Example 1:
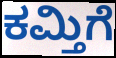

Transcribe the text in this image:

ಕಮ್ತಿಗೆ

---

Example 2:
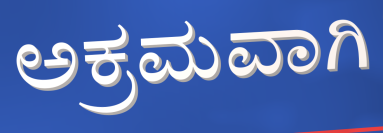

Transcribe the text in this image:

ಅಕ್ರಮವಾಗಿ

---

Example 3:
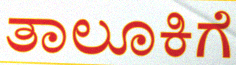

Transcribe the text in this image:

ತಾಲೂಕಿಗೆ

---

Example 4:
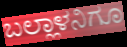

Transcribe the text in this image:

ಬಲ್ಲಾಳನಿಗೂ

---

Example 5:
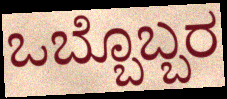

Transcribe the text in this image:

ಒಬ್ಬೊಬ್ಬರ